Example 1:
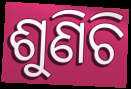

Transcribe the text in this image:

ଶୁଣିଚି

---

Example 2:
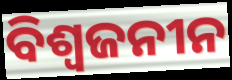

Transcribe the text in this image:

ବିଶ୍ୱଜନୀନ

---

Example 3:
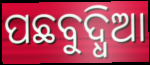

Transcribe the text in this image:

ପଛବୁଦ୍ଧିଆ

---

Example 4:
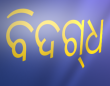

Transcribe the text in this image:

ବିଦଗ୍‌ଧ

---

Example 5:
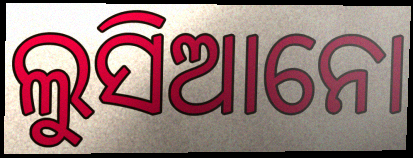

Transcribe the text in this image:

ଲୁସିଆନୋ